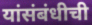
यांसंबंधीची